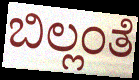
ಬಿಲ್ಲಂತೆ